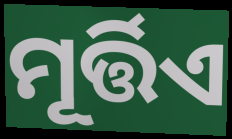
ମୂର୍ତ୍ତିଏ